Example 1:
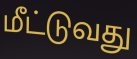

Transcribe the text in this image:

மீட்டுவது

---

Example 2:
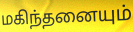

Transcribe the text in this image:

மகிந்தனையும்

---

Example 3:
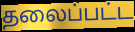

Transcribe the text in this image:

தலைப்பட்ட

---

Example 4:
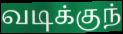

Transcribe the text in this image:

வடிக்குந்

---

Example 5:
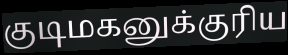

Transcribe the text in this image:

குடிமகனுக்குரிய